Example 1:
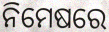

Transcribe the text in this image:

ନିମେଷରେ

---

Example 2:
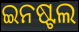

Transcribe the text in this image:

ଇନଷ୍ଟଲ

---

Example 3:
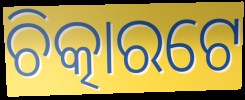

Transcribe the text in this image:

ଚିତ୍କାରଟେ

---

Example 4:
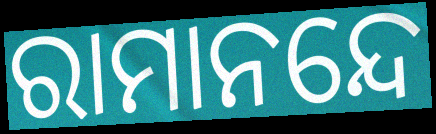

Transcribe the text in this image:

ରାମାନନ୍ଦେ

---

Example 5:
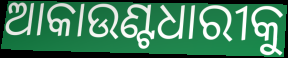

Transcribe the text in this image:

ଆକାଉଣ୍ଟଧାରୀକୁ